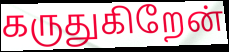
கருதுகிறேன்